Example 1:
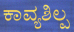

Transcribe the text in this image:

ಕಾವ್ಯಶಿಲ್ಪ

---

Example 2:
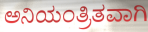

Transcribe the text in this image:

ಅನಿಯಂತ್ರಿತವಾಗಿ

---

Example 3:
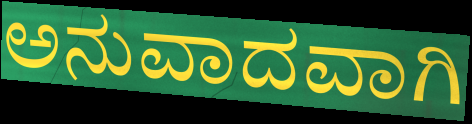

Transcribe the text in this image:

ಅನುವಾದವಾಗಿ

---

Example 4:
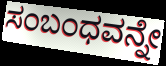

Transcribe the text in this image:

ಸಂಬಂಧವನ್ನೇ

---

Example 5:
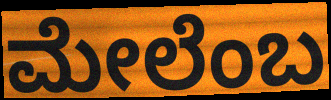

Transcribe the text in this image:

ಮೇಲೆಂಬ